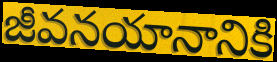
జీవనయానానికి